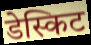
डेस्किट